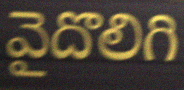
వైదొలిగి